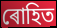
ৰোহিত